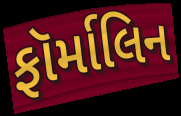
ફૉર્માલિન